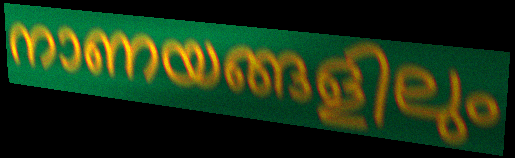
നാണയങ്ങളിലും